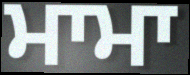
ਮਾਮਾ